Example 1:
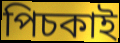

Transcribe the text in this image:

পিচকাই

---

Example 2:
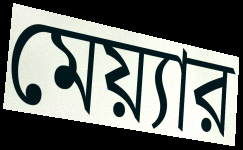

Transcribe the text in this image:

মেয়্যার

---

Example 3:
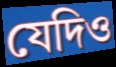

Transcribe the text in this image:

যেদিও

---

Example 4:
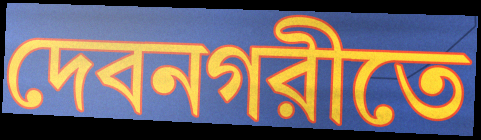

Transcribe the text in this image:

দেবনগরীতে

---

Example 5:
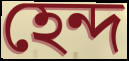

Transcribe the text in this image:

হেন্দ